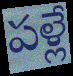
పళ్లే